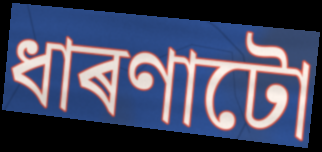
ধাৰণাটো